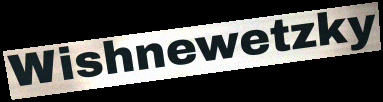
Wishnewetzky